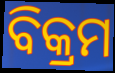
ବିକ୍ରମ